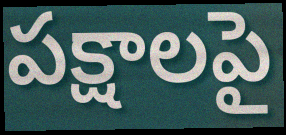
పక్షాలపై